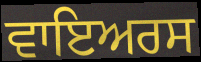
ਵਾਇਅਰਸ